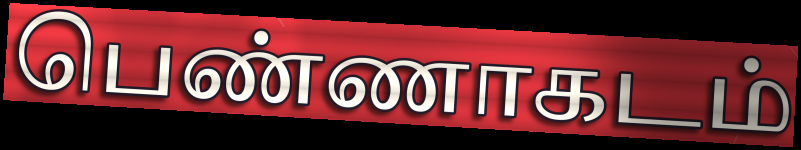
பெண்ணாகடம்